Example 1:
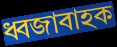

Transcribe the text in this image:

ধ্বজাবাহক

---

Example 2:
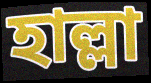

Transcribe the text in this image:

হাল্লা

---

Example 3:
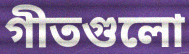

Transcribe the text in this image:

গীতগুলো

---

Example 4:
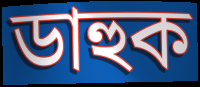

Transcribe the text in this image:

ডাহুক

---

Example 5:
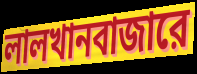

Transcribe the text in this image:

লালখানবাজারে